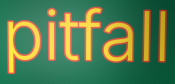
pitfall